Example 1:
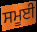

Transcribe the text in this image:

ਸਮੂਈ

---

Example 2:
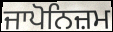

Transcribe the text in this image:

ਜਾਪੋਨਿਜ਼ਮ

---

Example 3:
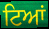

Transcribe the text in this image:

ਟਿਆਂ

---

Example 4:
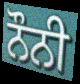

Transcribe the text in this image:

ਨੌਨੀ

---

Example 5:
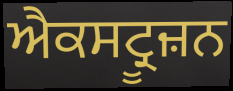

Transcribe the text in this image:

ਐਕਸਟ੍ਰੂਜ਼ਨ